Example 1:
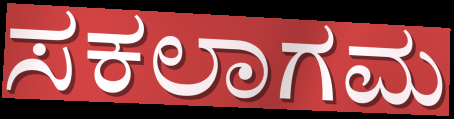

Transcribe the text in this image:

ಸಕಲಾಗಮ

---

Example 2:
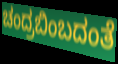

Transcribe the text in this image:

ಚಂದ್ರಬಿಂಬದಂತೆ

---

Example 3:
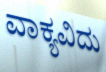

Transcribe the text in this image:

ವಾಕ್ಯವಿದು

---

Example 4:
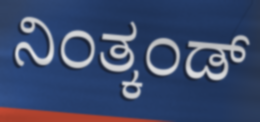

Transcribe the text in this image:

ನಿಂತ್ಕಂಡ್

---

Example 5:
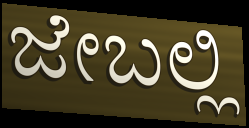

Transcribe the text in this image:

ಜೇಬಲ್ಲಿ